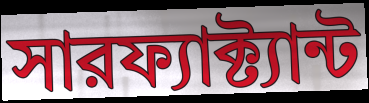
সারফ্যাক্ট্যান্ট